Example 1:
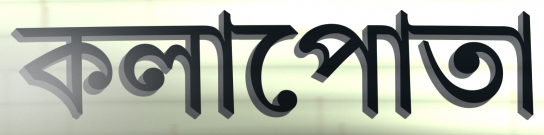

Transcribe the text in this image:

কলাপোতা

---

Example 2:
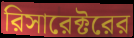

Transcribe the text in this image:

রিসারেক্টরের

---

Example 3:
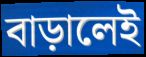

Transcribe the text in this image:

বাড়ালেই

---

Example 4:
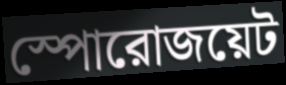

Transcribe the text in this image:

স্পোরোজয়েট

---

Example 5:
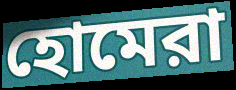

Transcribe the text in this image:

হোমেরা